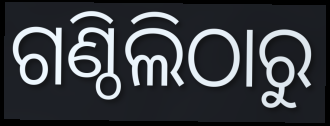
ଗଣ୍ଠିଲିଠାରୁ